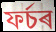
ফৰ্চৰ